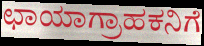
ಛಾಯಾಗ್ರಾಹಕನಿಗೆ